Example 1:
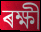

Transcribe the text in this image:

ৰক্ষী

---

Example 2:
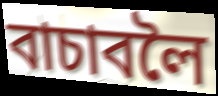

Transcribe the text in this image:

বাচাবলৈ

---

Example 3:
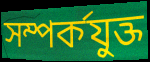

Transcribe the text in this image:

সম্পৰ্কযুক্ত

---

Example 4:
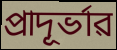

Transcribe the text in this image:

প্ৰাদূৰ্ভাৱ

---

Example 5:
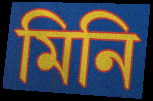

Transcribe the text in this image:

মিনি